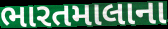
ભારતમાલાના